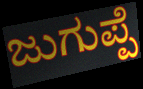
ಜುಗುಪ್ಪೆ